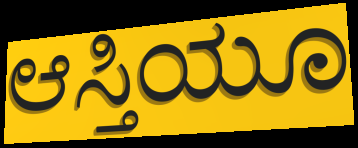
ಆಸ್ತಿಯೂ